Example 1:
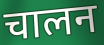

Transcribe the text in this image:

चालन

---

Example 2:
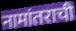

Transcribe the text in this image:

नामांतराची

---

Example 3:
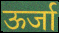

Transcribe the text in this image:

ऊर्जा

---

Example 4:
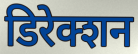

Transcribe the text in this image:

डिरेक्शन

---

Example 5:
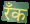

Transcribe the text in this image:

रँक